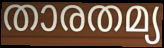
താരതമ്യ